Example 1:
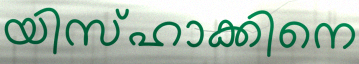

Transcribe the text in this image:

യിസ്ഹാക്കിനെ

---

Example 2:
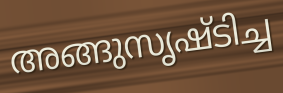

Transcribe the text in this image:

അങ്ങുസൃഷ്ടിച്ച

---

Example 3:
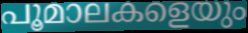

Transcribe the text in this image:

പൂമാലകളെയും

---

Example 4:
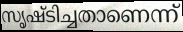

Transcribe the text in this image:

സൃഷ്ടിച്ചതാണെന്ന്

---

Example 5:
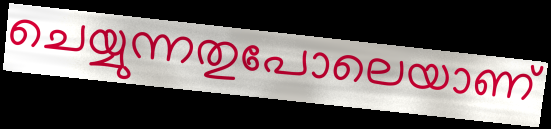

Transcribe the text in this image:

ചെയ്യുന്നതുപോലെയാണ്